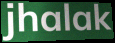
jhalak